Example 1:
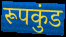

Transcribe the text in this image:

रूपकुंड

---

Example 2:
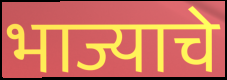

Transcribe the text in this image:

भाज्याचे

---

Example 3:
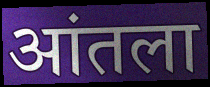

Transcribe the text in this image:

आंतला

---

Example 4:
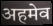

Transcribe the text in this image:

अहमेव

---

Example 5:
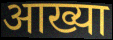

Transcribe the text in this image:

आख्या